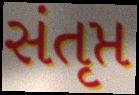
સંતૃપ્ત